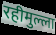
रहीमुल्ला